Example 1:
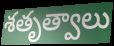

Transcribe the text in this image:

శతృత్వాలు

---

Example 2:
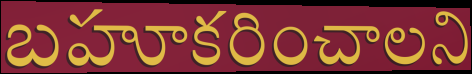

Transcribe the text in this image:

బహూకరించాలని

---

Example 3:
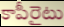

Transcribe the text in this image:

కాపీరైటు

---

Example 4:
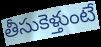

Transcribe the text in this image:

తీసుకెళ్తుంటే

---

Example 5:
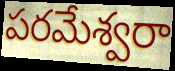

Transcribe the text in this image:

పరమేశ్వరా